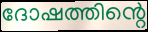
ദോഷത്തിന്റെ